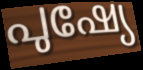
പുഷ്യേ